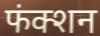
फंक्शन